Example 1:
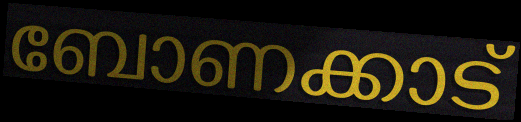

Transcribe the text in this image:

ബോണക്കാട്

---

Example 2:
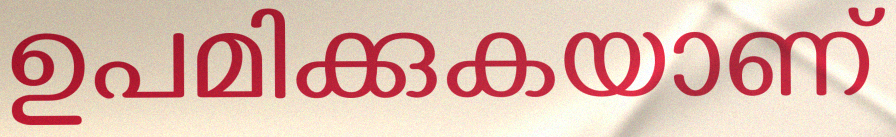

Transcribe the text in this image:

ഉപമിക്കുകയാണ്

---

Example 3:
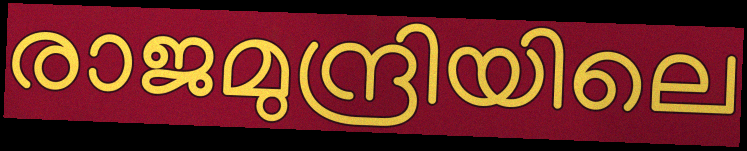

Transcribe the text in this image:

രാജമുന്ദ്രിയിലെ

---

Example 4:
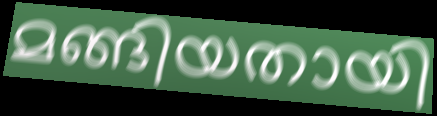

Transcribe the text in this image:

മങ്ങിയതായി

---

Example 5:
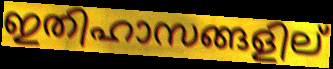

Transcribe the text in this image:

ഇതിഹാസങ്ങളില്